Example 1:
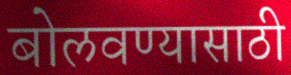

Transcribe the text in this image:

बोलवण्यासाठी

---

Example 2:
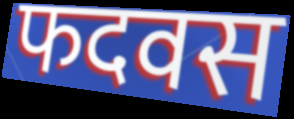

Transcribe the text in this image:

फदवस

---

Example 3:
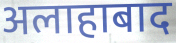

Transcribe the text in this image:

अलाहाबाद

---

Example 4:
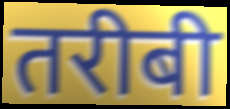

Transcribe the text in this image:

तरीबी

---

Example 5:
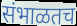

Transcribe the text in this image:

संभाळतच